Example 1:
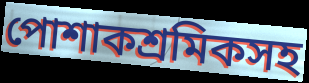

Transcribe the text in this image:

পোশাকশ্রমিকসহ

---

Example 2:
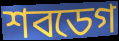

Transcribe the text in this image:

শবডেগ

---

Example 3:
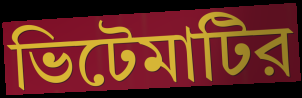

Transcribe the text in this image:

ভিটেমাটির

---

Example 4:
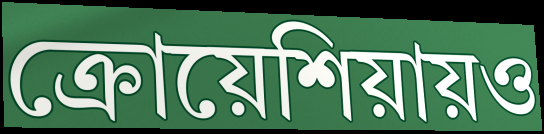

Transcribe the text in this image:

ক্রোয়েশিয়ায়ও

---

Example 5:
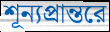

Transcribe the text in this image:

শূন্যপ্রান্তরে